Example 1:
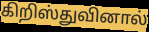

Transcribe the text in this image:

கிறிஸ்துவினால்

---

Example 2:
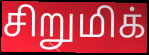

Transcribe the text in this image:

சிறுமிக்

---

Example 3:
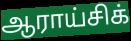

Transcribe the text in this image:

ஆராய்சிக்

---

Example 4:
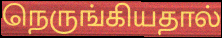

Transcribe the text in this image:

நெருங்கியதால்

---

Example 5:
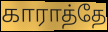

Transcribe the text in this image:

காராத்தே